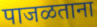
पाजळताना